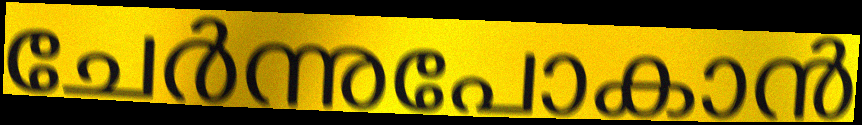
ചേർന്നുപോകാൻ